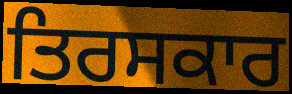
ਤਿਰਸਕਾਰ